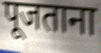
पूजताना